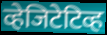
व्हेजिटेटिव्ह